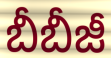
బీబీజీ